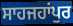
ਸਾਹਜਹਾਂਪੁਰ